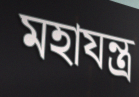
মহাযন্ত্র